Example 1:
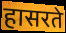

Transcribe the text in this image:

हासरते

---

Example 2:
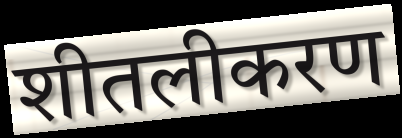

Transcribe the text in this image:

शीतलीकरण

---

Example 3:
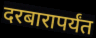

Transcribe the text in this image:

दरबारापर्यंत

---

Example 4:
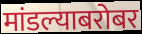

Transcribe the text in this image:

मांडल्याबरोबर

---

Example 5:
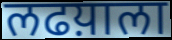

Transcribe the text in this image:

लढय़ाला